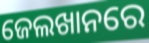
ଜେଲଖାନରେ